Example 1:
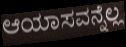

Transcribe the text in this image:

ಆಯಾಸವನ್ನೆಲ್ಲ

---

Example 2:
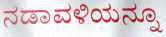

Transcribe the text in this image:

ನಡಾವಳಿಯನ್ನೂ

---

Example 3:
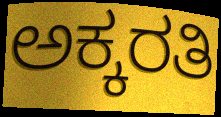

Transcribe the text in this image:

ಅಕ್ಕರತಿ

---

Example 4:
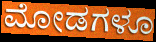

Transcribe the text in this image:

ಮೋಡಗಳೂ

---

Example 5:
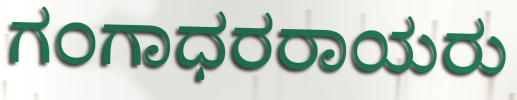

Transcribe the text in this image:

ಗಂಗಾಧರರಾಯರು